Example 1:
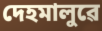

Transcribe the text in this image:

দেহমালুৱে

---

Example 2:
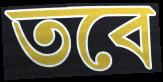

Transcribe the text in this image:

তবে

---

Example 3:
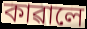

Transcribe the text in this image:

কাৱালে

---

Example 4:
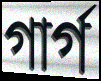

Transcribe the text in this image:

গাৰ্গ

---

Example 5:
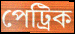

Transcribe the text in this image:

পেট্ৰিক